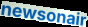
newsonair